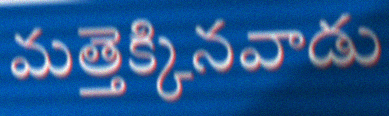
మత్తెక్కినవాడు